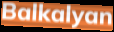
Balkalyan